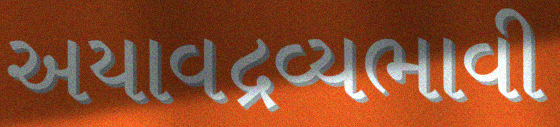
અયાવદ્રવ્યભાવી